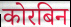
कोरबिन